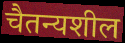
चैतन्यशील